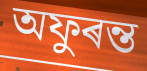
অফুৰন্ত